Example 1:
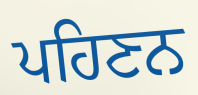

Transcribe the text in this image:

ਪਹਿਣਨ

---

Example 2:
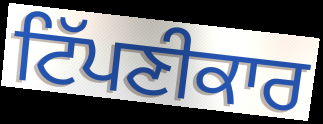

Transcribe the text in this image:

ਟਿੱਪਣੀਕਾਰ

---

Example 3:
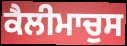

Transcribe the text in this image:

ਕੈਲੀਮਾਚੁਸ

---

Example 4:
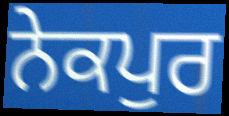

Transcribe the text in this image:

ਨੇਕਪੁਰ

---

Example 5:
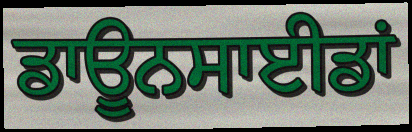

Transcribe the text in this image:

ਡਾਊਨਸਾਈਡਾਂ